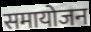
समायोजन